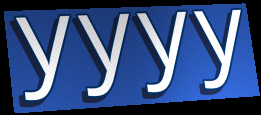
yyyy